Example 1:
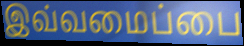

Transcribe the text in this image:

இவ்வமைப்பை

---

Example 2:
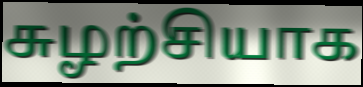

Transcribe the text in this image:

சுழற்சியாக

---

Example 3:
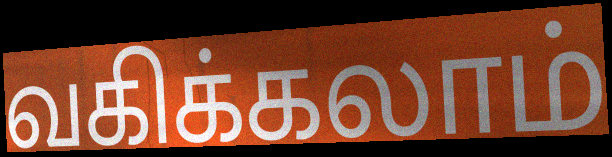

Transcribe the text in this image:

வகிக்கலாம்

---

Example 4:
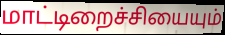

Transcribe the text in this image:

மாட்டிறைச்சியையும்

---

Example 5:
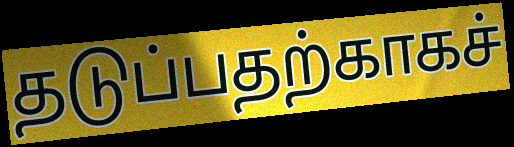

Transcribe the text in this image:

தடுப்பதற்காகச்